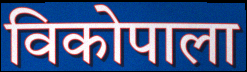
विकोपाला